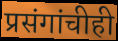
प्रसंगांचीही